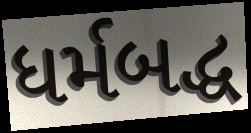
ધર્મબદ્ધ